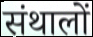
संथालों